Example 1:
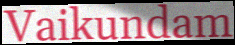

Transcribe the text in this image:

Vaikundam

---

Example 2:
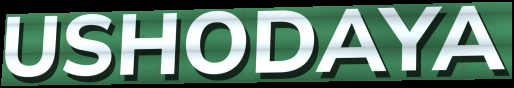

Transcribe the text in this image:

USHODAYA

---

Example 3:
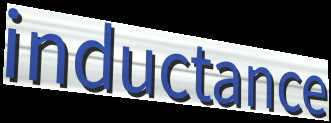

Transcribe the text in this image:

inductance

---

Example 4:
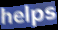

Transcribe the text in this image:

helps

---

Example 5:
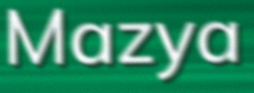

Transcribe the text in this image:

Mazya